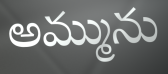
అమ్మును